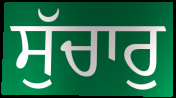
ਸੁੱਚਾਰੁ